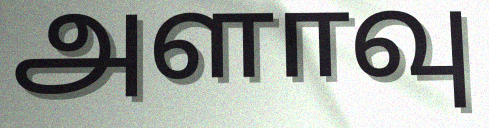
அளாவு